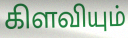
கிளவியும்